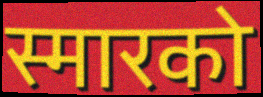
स्मारको